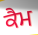
ਕੈਮ